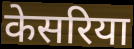
केसरिया